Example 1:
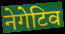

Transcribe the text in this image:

नेगेटिव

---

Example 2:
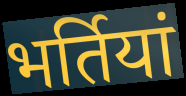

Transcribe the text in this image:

भर्तियां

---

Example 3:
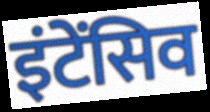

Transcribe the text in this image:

इंटेंसिव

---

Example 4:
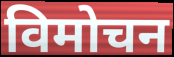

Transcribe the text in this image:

विमोचन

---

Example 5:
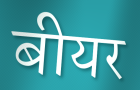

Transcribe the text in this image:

बीयर